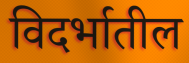
विदर्भातील